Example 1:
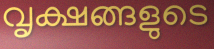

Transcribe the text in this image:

വൃക്ഷങ്ങളുടെ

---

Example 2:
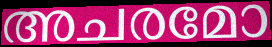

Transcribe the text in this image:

അചരമോ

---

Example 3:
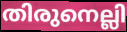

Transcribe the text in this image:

തിരുനെല്ലി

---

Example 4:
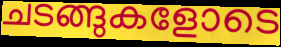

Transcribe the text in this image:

ചടങ്ങുകളോടെ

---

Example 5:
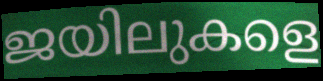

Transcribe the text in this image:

ജയിലുകളെ